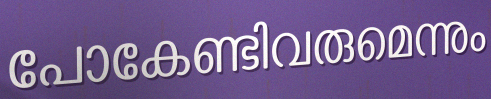
പോകേണ്ടിവരുമെന്നും